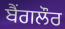
ਬੈਂਗਲੌਰ